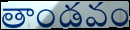
తాండవం